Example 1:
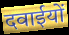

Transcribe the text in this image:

दवाईयों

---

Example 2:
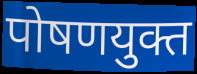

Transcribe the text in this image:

पोषणयुक्त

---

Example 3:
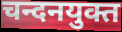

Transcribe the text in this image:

चन्दनयुक्त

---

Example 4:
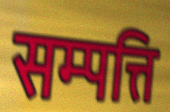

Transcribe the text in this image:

सम्पत्ति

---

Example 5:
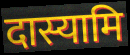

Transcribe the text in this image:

दास्यामि